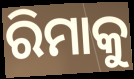
ରିମାକୁ